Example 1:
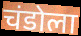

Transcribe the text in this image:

चंडोला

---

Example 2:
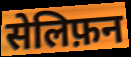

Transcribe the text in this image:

सेलिफ़न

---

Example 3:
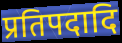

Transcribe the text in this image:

प्रतिपदादि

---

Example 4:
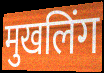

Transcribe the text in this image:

मुखलिंग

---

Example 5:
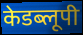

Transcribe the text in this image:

केडब्लूपी